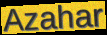
Azahar